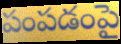
పంపడంపై